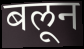
बलून